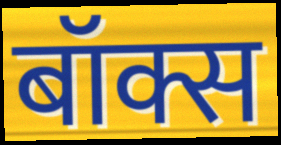
बॉक्स